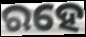
ରହେ